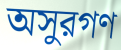
অসুরগণ